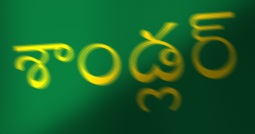
శాండ్లర్